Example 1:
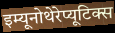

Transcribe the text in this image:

इम्यूनोथेरेप्यूटिक्स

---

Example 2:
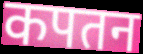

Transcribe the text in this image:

कपतन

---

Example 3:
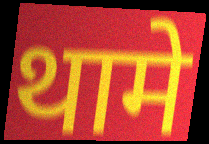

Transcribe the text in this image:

थामे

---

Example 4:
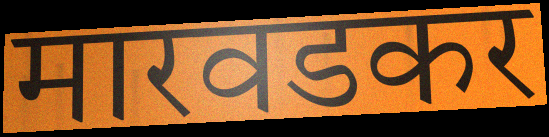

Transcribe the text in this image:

मारवडकर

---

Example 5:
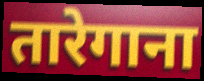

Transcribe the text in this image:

तारेगाना